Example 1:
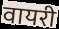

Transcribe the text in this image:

वायरी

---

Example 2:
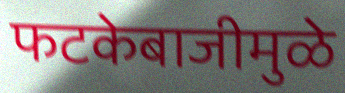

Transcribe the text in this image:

फटकेबाजीमुळे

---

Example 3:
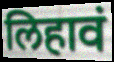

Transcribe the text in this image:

लिहावं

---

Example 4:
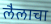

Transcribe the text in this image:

लैलाचा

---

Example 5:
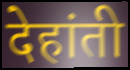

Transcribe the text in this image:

देहांती